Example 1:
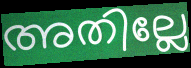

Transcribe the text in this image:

അതില്ലേ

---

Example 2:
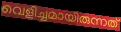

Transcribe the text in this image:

വെളിച്ചമായിരുന്നത്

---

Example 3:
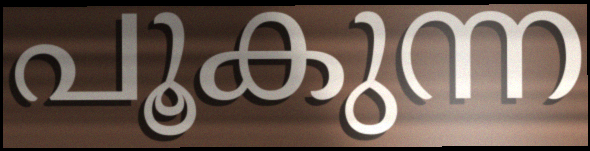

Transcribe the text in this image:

പൂകുന്ന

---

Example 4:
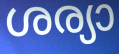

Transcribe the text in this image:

ശര്യാ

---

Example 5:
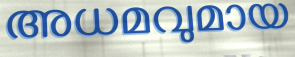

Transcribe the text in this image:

അധമവുമായ